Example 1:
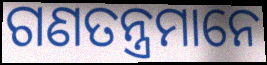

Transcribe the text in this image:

ଗଣତନ୍ତ୍ରମାନେ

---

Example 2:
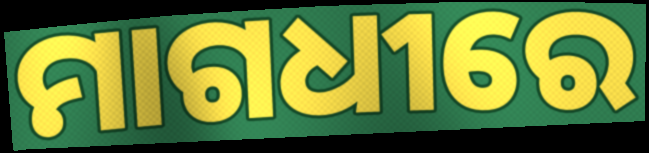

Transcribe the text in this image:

ମାଗଧୀରେ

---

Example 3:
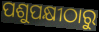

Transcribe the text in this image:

ପଶୁପକ୍ଷୀଠାରୁ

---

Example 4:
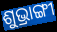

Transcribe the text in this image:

ଶୁଭ୍ରାଙ୍ଗୀ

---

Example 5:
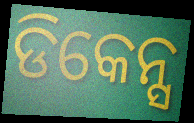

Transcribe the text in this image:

ଡିକେନ୍ସ